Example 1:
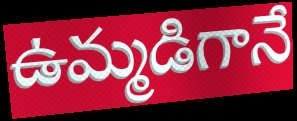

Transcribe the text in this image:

ఉమ్మడిగానే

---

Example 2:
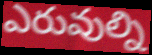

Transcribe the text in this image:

ఎరువుల్ని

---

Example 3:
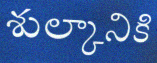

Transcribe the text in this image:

శుల్కానికి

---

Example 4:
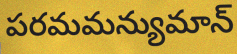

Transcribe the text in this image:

పరమమన్యుమాన్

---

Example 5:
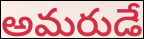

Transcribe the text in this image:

అమరుడే